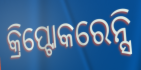
କ୍ରିପ୍ଟୋକରେନ୍ସି